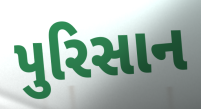
પુરિસાન